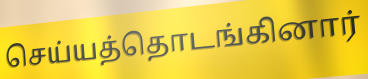
செய்யத்தொடங்கினார்